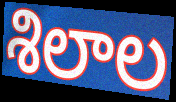
శిలాల